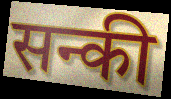
सन्की